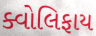
ક્વોલિફાય